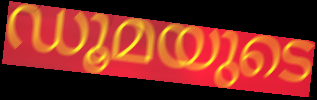
ഡൂമയുടെ